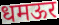
धमऊर